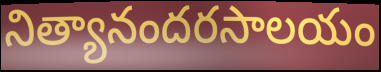
నిత్యానందరసాలయం